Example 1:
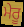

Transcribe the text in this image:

ਮੇਰੂ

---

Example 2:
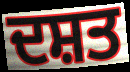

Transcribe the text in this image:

ਦਸ਼ਤ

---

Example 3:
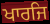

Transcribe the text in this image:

ਖਾਰਜਿ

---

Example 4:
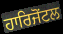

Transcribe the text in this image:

ਹਾਰਿਜੋਂਟਲ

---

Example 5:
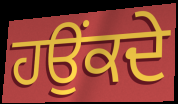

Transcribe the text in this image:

ਹਉਂਕਦੇ